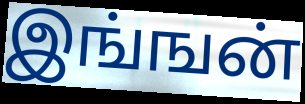
இங்ஙன்